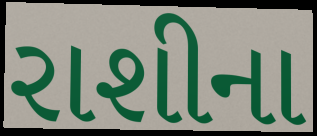
રાશીના